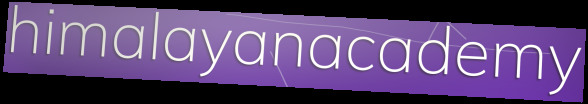
himalayanacademy